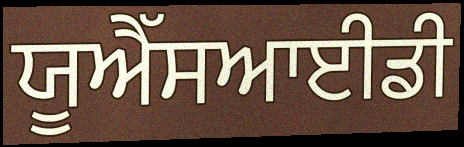
ਯੂਐੱਸਆਈਡੀ